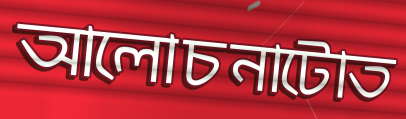
আলোচনাটোত